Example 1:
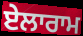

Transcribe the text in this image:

ਏਲਾਰਾਮ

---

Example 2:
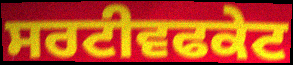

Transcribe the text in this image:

ਸਰਟੀਵਫਕੇਟ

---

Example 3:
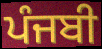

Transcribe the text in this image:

ਪੰਜਬੀ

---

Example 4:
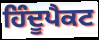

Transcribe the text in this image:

ਹਿੰਦੂਪੈਕਟ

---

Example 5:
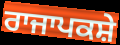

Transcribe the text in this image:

ਰਾਜਾਪਕਸ਼ੇ